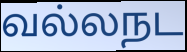
வல்லநட